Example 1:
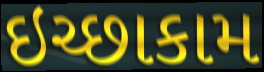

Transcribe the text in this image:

ઇચ્છાકામ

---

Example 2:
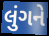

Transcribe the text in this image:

લુંગને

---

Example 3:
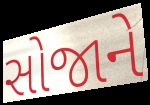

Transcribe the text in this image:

સોજાને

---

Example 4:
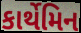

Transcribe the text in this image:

કાર્થેમિન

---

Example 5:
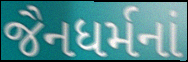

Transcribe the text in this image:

જૈનધર્મનાં